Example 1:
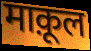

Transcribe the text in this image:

माक़ूल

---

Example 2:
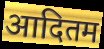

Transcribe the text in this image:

आदितम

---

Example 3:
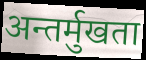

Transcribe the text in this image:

अन्तर्मुखता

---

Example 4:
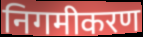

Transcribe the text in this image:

निगमीकरण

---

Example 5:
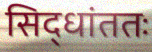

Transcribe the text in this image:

सिद्धांततः